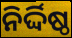
ନିର୍ଦ୍ଦିଷ୍ଠ